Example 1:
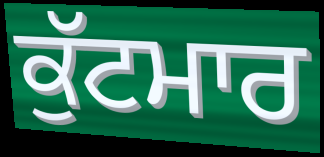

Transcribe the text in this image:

ਕੁੱਟਮਾਰ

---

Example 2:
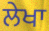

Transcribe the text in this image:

ਲੇਖਾ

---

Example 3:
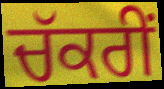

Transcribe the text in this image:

ਚੱਕਰੀਂ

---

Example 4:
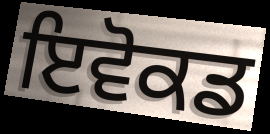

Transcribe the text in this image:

ਇਵੋਕਡ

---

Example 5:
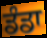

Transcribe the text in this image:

ਡੰਡਾ